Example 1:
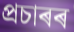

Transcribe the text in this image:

প্ৰচাৰৰ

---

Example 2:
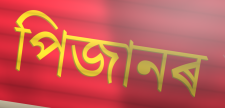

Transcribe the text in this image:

পিজানৰ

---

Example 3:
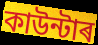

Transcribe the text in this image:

কাউন্টাৰ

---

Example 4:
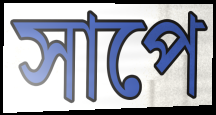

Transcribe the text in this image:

সাপে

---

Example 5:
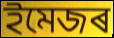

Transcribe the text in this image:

ইমেজৰ